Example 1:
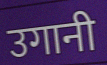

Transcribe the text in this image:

उगानी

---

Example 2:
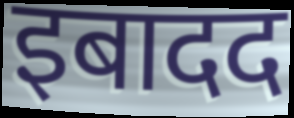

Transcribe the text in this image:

इबादद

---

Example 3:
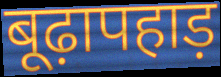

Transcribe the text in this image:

बूढ़ापहाड़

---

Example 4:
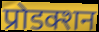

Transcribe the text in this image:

प्रोडक्शन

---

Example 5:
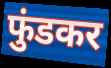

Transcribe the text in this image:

फुंडकर